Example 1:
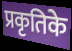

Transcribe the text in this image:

प्रकृतिके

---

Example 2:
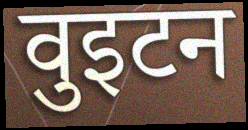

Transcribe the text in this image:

वुइटन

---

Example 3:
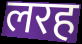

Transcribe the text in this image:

लरह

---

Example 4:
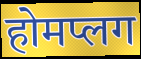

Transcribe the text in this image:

होमप्लग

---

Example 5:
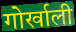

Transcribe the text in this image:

गोर्खाली